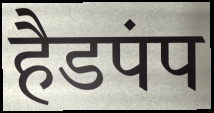
हैडपंप